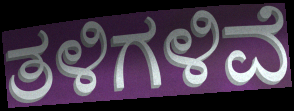
ತಳಿಗಳಿವೆ